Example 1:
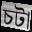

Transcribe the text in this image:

চটা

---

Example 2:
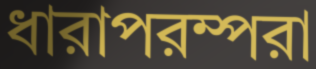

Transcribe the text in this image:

ধারাপরম্পরা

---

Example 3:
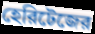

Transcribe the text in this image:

হেরিটেজের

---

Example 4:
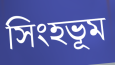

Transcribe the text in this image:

সিংহভূম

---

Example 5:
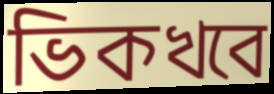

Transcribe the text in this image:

ভিকখবে